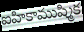
ఐహికాముష్మిక